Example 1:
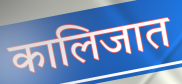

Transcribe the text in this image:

कालिजात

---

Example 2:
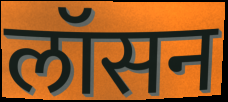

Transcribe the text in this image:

लॉसन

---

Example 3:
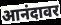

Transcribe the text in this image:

आनंदावर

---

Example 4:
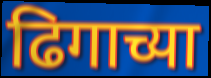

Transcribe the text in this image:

ढिगाच्या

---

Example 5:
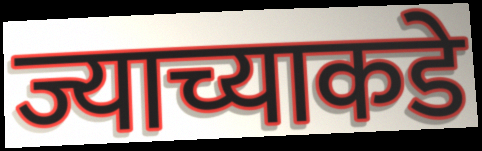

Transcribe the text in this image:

ज्याच्याकडे